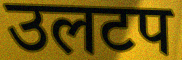
उलटप